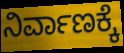
ನಿರ್ವಾಣಕ್ಕೆ